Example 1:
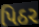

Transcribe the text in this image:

પિઠર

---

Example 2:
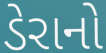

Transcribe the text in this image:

ડેરાનો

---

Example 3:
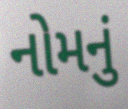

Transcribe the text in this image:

નોમનું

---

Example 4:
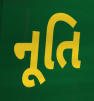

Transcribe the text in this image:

નૂતિ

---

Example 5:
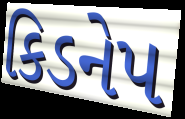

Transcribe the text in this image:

કિડનેપ